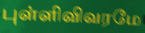
புள்ளிவிவரமே